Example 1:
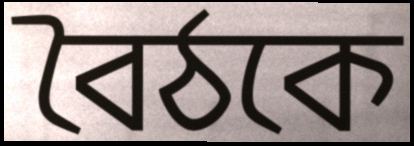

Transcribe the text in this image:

বৈঠকে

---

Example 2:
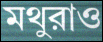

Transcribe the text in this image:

মথুরাও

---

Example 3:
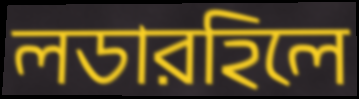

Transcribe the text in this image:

লডারহিলে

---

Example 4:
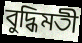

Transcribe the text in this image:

বুদ্ধিমতী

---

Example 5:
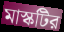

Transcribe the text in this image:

মাস্কটির